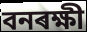
বনৰক্ষী